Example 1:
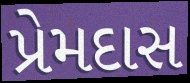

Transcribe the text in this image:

પ્રેમદાસ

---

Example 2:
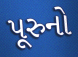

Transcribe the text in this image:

પૂરુનો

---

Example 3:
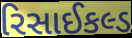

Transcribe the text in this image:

રિસાઈકલ્ડ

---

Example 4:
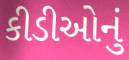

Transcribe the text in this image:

કીડીઓનું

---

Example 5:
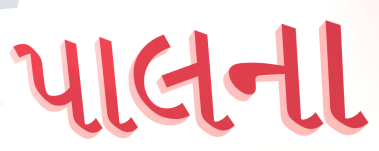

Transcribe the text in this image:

પાલના